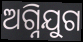
ଅଗ୍ନିଯୁଗ